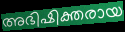
അഭിഷിക്തരായ